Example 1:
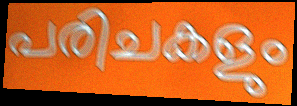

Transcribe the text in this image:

പരിചകളും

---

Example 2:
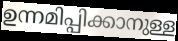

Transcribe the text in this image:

ഉന്നമിപ്പിക്കാനുള്ള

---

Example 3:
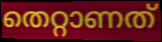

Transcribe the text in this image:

തെറ്റാണത്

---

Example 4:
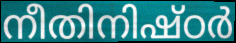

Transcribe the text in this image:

നീതിനിഷ്ഠർ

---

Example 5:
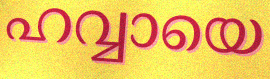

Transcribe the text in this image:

ഹവ്വായെ